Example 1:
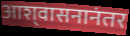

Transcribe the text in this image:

आश्वासनानंतर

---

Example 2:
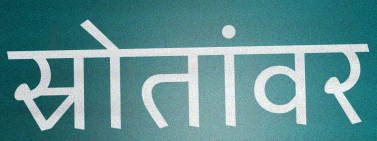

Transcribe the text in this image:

स्रोतांवर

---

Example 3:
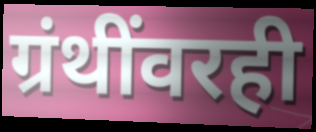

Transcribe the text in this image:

ग्रंथींवरही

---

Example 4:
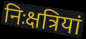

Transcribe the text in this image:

निःक्षत्रियां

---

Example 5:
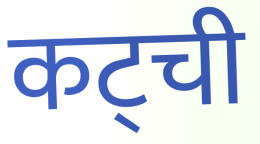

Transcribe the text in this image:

कट्ची